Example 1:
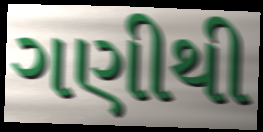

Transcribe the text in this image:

ગણીથી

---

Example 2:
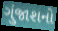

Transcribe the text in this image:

ગુંજાશનો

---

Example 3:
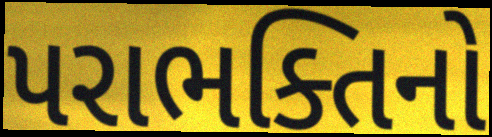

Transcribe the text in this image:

પરાભક્તિનો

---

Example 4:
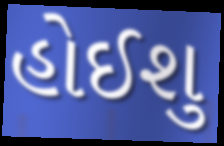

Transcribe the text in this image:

હોઈશુ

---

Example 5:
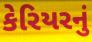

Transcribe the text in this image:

કેરિયરનું